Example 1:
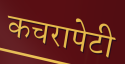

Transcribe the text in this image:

कचरापेटी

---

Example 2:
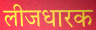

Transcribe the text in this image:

लीजधारक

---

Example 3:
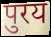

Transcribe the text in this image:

पुरय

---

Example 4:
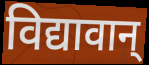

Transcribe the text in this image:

विद्यावान्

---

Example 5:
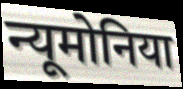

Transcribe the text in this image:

न्यूमोनिया